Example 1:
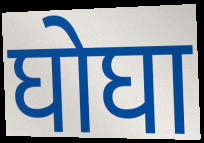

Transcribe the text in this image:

घोघा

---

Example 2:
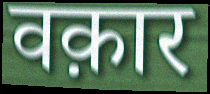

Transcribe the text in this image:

वक़ार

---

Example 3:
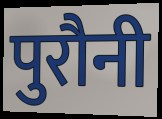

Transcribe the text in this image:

पुरौनी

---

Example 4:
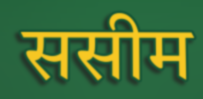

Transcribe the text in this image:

ससीम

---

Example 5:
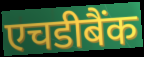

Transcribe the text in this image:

एचडीबैंक